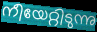
നീയേറ്റിടുന്നു